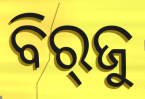
ବିର୍‌ଜୁ